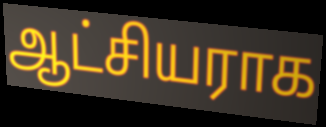
ஆட்சியராக